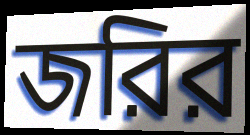
জরির